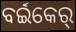
ବର୍ଇକେର୍